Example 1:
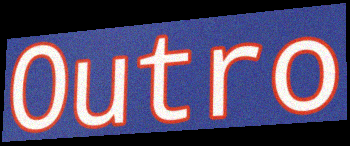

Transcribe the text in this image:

Outro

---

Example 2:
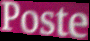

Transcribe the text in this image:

Poste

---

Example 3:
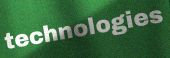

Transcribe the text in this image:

technologies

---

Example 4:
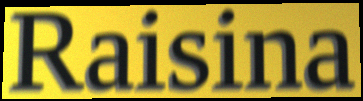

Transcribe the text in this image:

Raisina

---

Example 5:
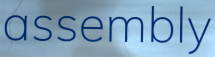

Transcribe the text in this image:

assembly